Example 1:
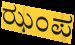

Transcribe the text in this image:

ಝಂಪ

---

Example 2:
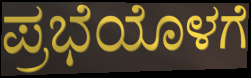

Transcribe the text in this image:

ಪ್ರಭೆಯೊಳಗೆ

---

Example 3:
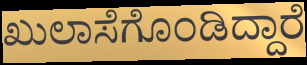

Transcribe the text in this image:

ಖುಲಾಸೆಗೊಂಡಿದ್ದಾರೆ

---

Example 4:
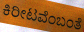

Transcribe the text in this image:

ಕಿರೀಟವೆಂಬಂತೆ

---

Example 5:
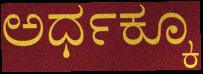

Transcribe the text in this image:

ಅರ್ಧಕ್ಕೂ